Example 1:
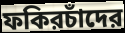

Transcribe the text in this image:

ফকিরচাঁদের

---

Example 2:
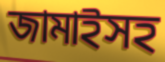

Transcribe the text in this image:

জামাইসহ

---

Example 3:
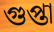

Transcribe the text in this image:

গুপ্তা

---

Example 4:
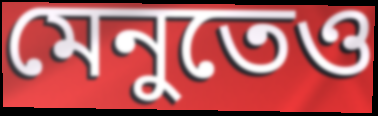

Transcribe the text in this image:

মেনুতেও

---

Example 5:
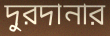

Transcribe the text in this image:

দুরদানার